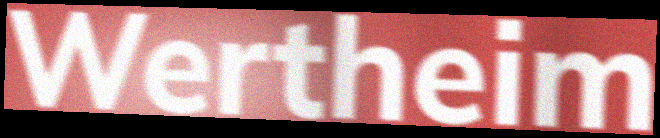
Wertheim